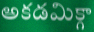
అకడమిక్గా